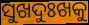
ସୁଖଦୁଃଖକୁ